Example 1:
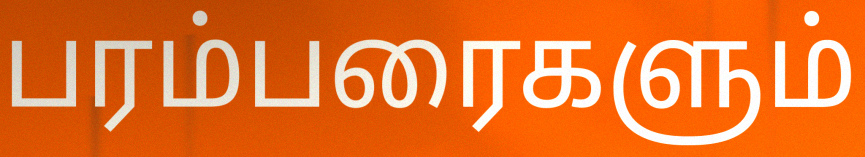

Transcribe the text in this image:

பரம்பரைகளும்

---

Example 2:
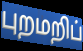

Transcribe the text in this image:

புறமறிப்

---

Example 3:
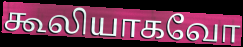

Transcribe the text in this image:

கூலியாகவோ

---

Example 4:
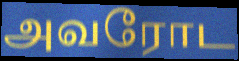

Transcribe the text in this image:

அவரோட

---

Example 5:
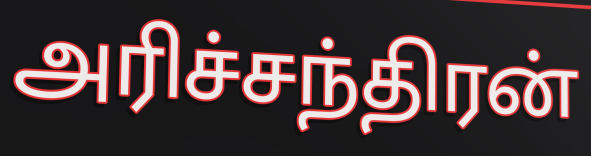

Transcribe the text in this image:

அரிச்சந்திரன்